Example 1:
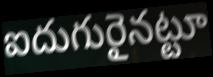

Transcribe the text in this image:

ఐదుగురైనట్టూ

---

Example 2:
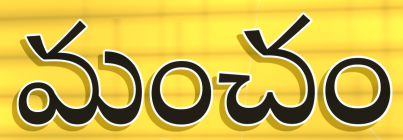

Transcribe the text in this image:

మంచం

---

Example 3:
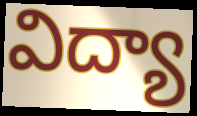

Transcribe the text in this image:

విద్యా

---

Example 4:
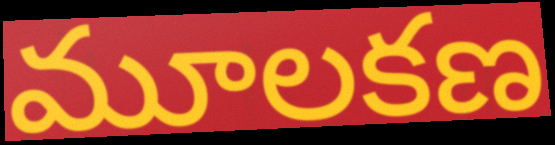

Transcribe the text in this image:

మూలకణ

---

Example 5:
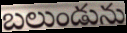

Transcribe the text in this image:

బలుండును